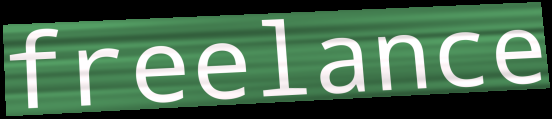
freelance